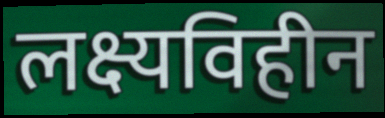
लक्ष्यविहीन